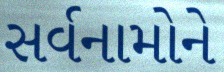
સર્વનામોને